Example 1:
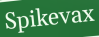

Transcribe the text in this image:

Spikevax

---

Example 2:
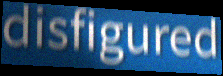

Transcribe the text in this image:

disfigured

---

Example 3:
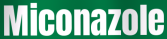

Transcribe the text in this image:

Miconazole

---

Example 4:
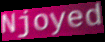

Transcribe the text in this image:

Njoyed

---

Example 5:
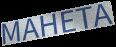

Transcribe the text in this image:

MAHETA